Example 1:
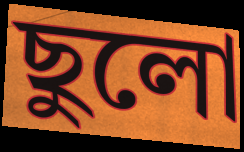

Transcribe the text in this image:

ছুলো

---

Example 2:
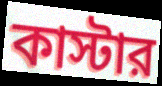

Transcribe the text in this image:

কাস্টার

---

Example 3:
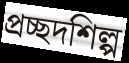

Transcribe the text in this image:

প্রচ্ছদশিল্প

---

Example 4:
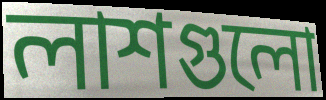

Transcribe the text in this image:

লাশগুলো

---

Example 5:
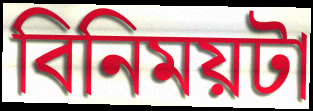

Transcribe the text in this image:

বিনিময়টা